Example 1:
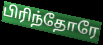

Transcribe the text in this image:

பிரிந்தோரே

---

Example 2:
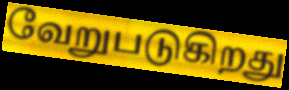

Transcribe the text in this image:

வேறுபடுகிறது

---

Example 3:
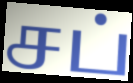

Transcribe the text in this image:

சப்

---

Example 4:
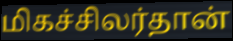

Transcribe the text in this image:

மிகச்சிலர்தான்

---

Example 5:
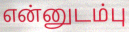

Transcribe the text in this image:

என்னுடம்பு